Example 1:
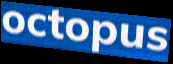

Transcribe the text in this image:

octopus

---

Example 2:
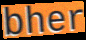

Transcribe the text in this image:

bher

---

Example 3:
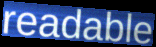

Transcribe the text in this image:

readable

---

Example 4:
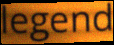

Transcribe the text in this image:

legend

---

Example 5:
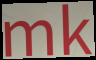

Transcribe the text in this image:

mk